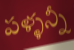
పళ్ళన్నీ